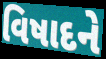
વિષાદને